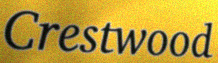
Crestwood